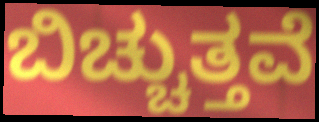
ಬಿಚ್ಚುತ್ತವೆ